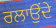
ਰਲਾਉਂਦੇ